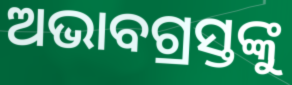
ଅଭାବଗ୍ରସ୍ତଙ୍କୁ